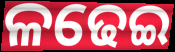
ଳଢେଇ